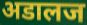
अडालज